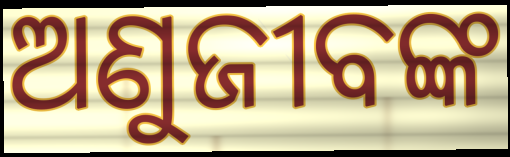
ଅଣୁଜୀବଙ୍କ